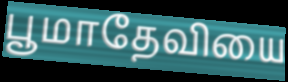
பூமாதேவியை